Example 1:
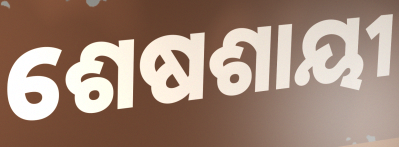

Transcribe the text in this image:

ଶେଷଶାୟୀ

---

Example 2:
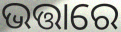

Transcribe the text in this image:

ଭତ୍ତାରେ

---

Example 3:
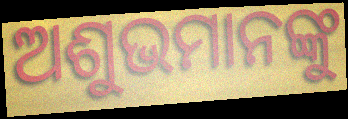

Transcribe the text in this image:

ଅଶୁଭମାନଙ୍କୁ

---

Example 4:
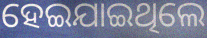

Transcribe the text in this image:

ହେଇଯାଇଥିଲେ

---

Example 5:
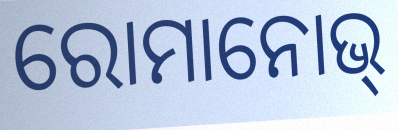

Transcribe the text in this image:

ରୋମାନୋଭ୍